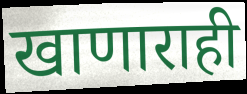
खाणाराही